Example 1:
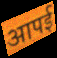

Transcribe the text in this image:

आपई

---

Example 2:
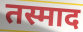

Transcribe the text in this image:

तस्माद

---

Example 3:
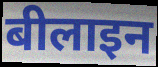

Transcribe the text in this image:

बीलाइन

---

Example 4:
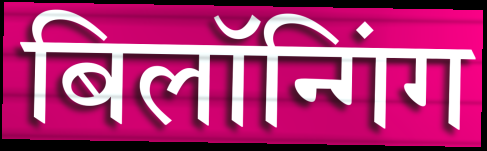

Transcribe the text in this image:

बिलॉन्गिंग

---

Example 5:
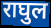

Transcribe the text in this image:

राघुल